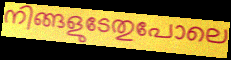
നിങ്ങളുടേതുപോലെ